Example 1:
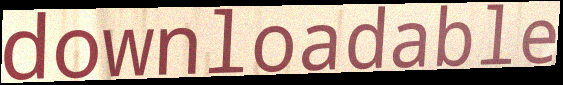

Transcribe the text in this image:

downloadable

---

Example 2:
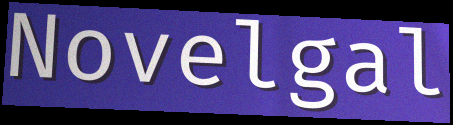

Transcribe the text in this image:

Novelgal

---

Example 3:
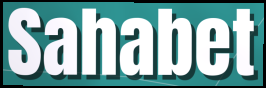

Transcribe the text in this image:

Sahabet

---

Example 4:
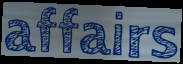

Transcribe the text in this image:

affairs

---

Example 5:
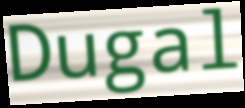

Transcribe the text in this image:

Dugal